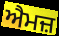
ਐਮਜ਼